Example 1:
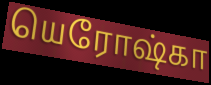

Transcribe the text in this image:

யெரோஷ்கா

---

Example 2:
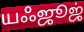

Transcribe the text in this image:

யஃஜூஜ்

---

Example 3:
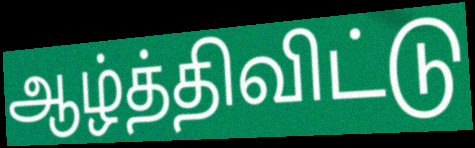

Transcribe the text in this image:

ஆழ்த்திவிட்டு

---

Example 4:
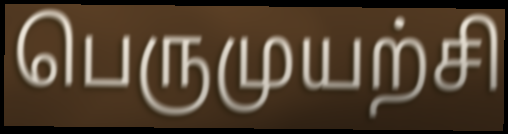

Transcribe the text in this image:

பெருமுயற்சி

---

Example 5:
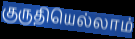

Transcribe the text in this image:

குருதியெல்லாம்